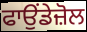
ਫਾਉਂਡੇਜ਼ੋਲ